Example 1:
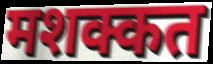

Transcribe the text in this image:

मशक्कत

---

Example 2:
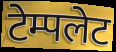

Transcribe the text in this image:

टेम्पलेट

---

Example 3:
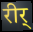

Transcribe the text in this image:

रीर्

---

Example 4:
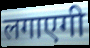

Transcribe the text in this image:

लगाएगी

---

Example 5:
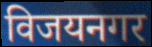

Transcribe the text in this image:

विजयनगर